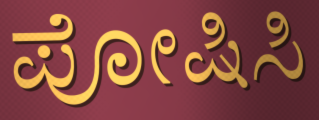
ಪೋಷಿಸಿ